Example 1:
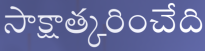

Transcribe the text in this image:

సాక్షాత్కరించేది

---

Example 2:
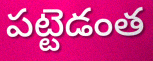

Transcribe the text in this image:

పట్టెడంత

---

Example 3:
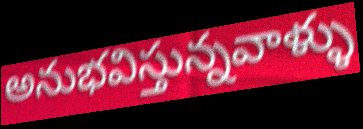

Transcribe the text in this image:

అనుభవిస్తున్నవాళ్ళు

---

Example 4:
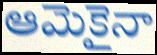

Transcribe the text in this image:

ఆమెకైనా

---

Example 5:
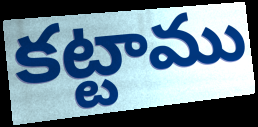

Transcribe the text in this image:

కట్టాము